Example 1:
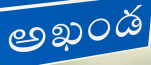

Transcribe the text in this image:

అఖండ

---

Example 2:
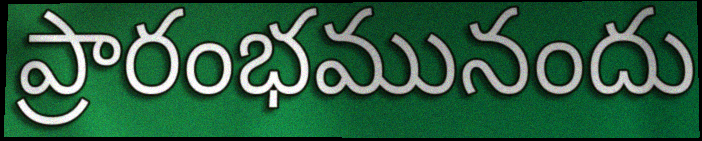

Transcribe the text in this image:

ప్రారంభమునందు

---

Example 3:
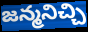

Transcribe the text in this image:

జన్మనిచ్చి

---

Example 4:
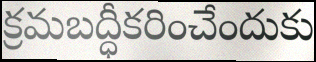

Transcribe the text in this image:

క్రమబద్ధీకరించేందుకు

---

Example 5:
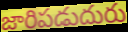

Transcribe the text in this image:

జారిపడుదురు